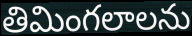
తిమింగలాలను